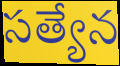
సత్యేన